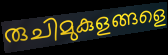
രുചിമുകുളങ്ങളെ